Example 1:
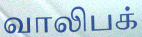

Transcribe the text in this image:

வாலிபக்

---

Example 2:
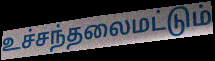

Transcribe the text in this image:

உச்சந்தலைமட்டும்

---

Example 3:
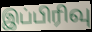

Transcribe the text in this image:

இப்பிரிவு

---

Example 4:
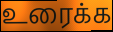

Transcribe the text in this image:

உரைக்க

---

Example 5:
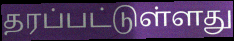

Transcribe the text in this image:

தரப்பட்டுள்ளது